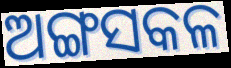
ଅଙ୍ଗସକଳ